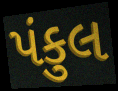
પંકુલ